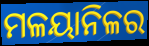
ମଳୟାନିଳର